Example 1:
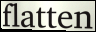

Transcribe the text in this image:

flatten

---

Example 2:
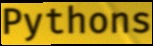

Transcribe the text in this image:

Pythons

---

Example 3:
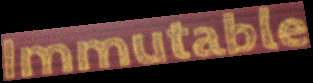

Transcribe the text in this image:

Immutable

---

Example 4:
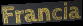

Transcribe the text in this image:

Francia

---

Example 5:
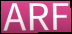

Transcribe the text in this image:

ARF